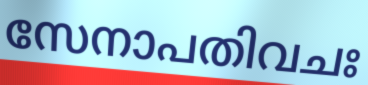
സേനാപതിവചഃ